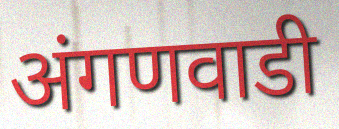
अंगणवाडी